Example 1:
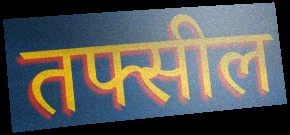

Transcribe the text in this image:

तफ्सील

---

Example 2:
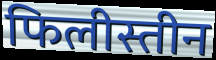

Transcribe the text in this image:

फिलीस्तीन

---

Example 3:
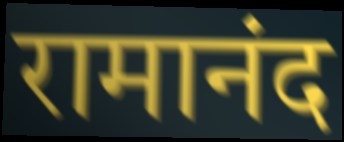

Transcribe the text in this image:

रामानंद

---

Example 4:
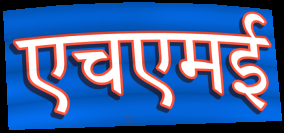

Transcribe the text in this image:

एचएमई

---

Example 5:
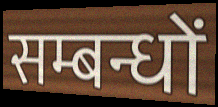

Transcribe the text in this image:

सम्बन्धों